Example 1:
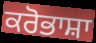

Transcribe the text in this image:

ਕਰੋਭਾਸ਼ਾ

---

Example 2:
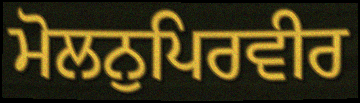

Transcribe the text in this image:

ਮੋਲਨੁਪਿਰਵੀਰ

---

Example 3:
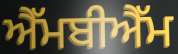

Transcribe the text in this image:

ਐੱਮਬੀਐੱਮ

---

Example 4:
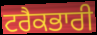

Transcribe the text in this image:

ਟਰੈਕਭਾਰੀ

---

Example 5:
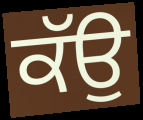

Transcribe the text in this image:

ਕੱਉ